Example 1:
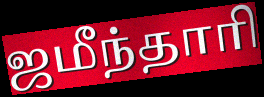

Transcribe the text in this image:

ஜமீந்தாரி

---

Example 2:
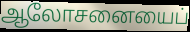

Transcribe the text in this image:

ஆலோசனையைப்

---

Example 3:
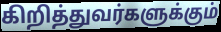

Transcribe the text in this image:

கிறித்துவர்களுக்கும்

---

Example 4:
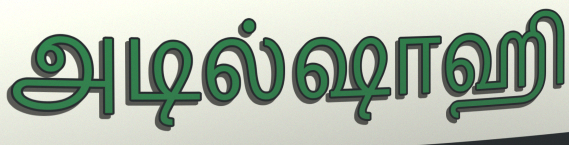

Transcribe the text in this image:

அடில்ஷாஹி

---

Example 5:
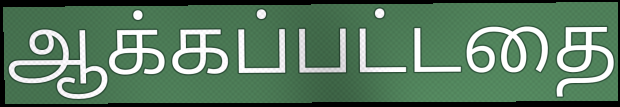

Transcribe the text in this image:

ஆக்கப்பட்டதை